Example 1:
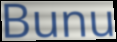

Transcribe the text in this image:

Bunu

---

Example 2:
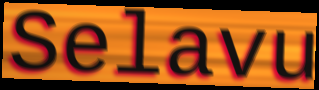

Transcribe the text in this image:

Selavu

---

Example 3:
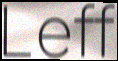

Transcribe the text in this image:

Leff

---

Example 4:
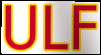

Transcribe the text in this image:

ULF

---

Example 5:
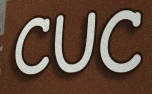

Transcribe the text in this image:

CUC